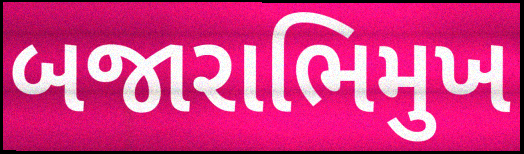
બજારાભિમુખ